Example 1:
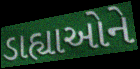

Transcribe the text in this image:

ડાહ્યાઓને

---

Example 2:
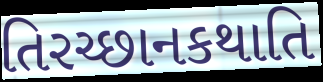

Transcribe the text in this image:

તિરચ્છાનકથાતિ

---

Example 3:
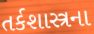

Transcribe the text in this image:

તર્કશાસ્ત્રના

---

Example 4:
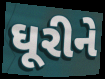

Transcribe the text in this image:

ઘૂરીને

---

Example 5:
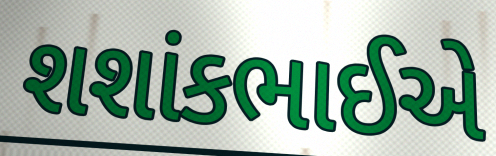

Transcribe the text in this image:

શશાંકભાઈએ